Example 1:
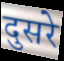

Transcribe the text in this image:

दुसरे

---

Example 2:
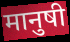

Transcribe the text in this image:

मानुषी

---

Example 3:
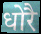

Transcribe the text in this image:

धोरै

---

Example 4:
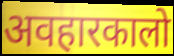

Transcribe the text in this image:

अवहारकालो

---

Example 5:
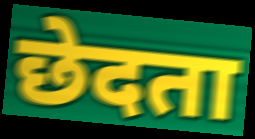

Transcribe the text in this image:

छेदता